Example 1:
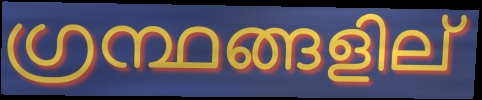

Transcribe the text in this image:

ഗ്രന്ഥങ്ങളില്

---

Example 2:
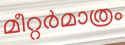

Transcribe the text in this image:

മീറ്റർമാത്രം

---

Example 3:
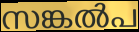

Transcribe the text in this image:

സങ്കൽപ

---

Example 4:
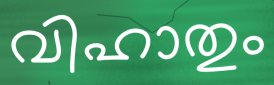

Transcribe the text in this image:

വിഹാതും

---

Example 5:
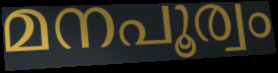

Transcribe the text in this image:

മനപൂര്വം